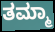
ತಮ್ಮಾ